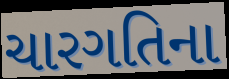
ચારગતિના